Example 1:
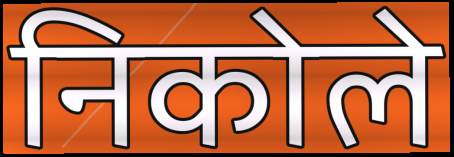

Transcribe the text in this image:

निकोले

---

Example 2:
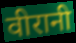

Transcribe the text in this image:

वीरानी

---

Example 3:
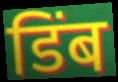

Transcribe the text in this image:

डिंब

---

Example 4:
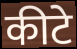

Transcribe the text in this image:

कीटे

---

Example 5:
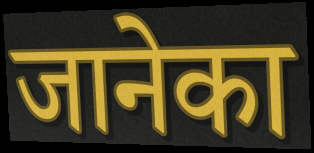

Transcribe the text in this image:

जानेका